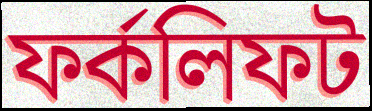
ফর্কলিফট